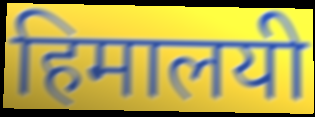
हिमालयी